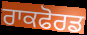
ਰਾਕਫੋਰਡ